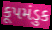
કૂપમંડુક